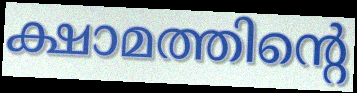
ക്ഷാമത്തിന്റെ